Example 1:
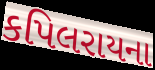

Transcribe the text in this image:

કપિલરાયના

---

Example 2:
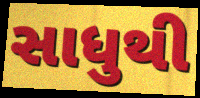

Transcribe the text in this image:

સાધુથી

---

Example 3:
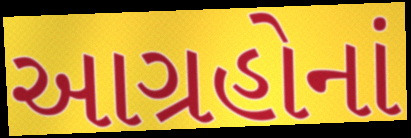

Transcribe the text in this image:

આગ્રહોનાં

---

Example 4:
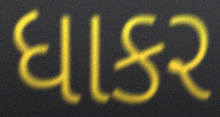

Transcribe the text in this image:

ધાકર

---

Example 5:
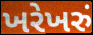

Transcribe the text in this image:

ખરેખરું